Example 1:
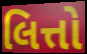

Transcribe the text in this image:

લિત્તો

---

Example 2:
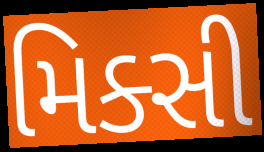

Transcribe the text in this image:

મિક્સી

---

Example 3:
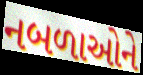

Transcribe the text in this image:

નબળાઓને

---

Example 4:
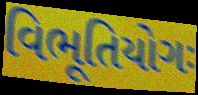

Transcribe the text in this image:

વિભૂતિયોગઃ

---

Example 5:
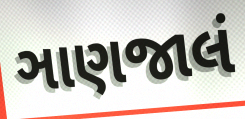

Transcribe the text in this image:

ઞાણજાલં